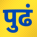
पुढं